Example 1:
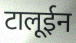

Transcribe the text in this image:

टालूईन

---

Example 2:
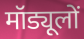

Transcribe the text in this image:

मॉड्यूलों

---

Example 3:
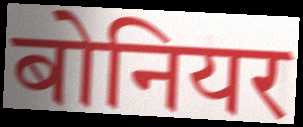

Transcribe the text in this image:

बोनियर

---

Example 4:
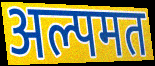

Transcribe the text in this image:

अल्पमत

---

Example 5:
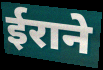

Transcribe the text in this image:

ईराने